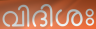
വിദിശഃ